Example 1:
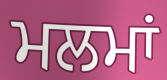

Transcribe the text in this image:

ਮਲਮਾਂ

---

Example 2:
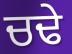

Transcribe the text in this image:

ਚਢੇ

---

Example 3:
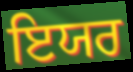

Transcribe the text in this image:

ਇਯਰ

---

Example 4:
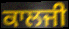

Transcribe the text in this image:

ਕਾਲਜੀ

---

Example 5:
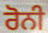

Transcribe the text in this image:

ਰੋਨੀ